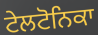
ਟੇਲਟੋਨਿਕਾ